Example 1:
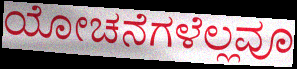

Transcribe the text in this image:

ಯೋಚನೆಗಳೆಲ್ಲವೂ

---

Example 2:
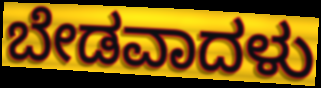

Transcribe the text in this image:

ಬೇಡವಾದಳು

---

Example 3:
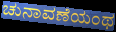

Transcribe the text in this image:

ಚುನಾವಣೆಯಂಥ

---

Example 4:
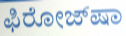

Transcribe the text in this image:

ಫಿರೋಜ್‌ಷಾ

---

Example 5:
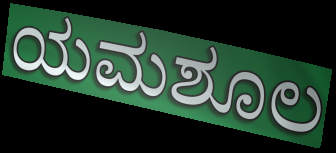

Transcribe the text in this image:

ಯಮಶೂಲ